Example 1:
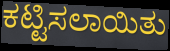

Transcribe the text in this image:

ಕಟ್ಟಿಸಲಾಯಿತು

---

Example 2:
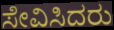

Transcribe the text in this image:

ಸೇವಿಸಿದರು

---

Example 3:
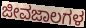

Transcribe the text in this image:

ಜೀವಜಾಲಗಳ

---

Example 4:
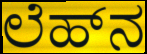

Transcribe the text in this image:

ಲೆಹ್‌ನ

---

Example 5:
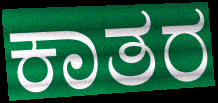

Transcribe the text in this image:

ಕಾತರ